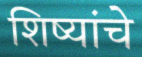
शिष्यांचे